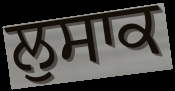
ਲੁਸਾਕ